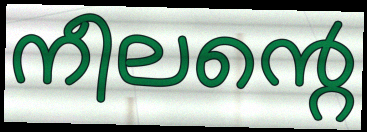
നീലന്റെ